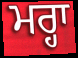
ਮਰ੍ਹਾ